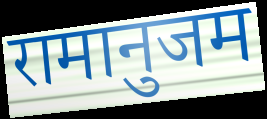
रामानुजम